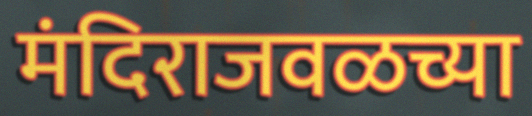
मंदिराजवळच्या